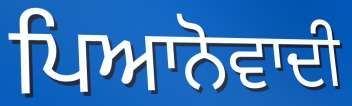
ਪਿਆਨੋਵਾਦੀ